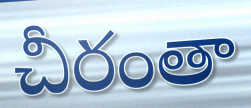
చీరంతా